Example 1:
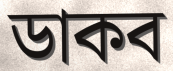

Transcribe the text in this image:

ডাকব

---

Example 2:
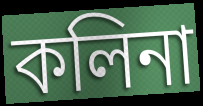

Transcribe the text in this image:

কলিনা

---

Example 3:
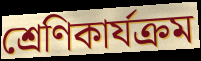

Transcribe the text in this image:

শ্রেণিকার্যক্রম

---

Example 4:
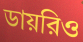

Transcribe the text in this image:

ডায়রিও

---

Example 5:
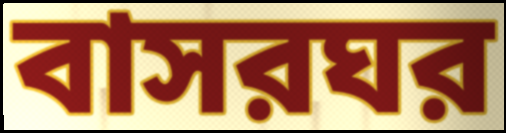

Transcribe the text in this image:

বাসরঘর